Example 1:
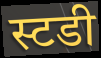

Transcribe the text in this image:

स्टडी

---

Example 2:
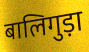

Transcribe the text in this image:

बालिगुड़ा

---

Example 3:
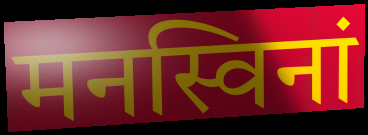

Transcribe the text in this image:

मनस्विनां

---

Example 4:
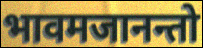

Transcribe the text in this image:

भावमजानन्तो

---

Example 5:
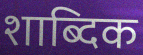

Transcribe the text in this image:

शाब्दिक